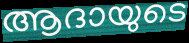
ആദായുടെ